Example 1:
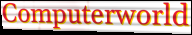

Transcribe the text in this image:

Computerworld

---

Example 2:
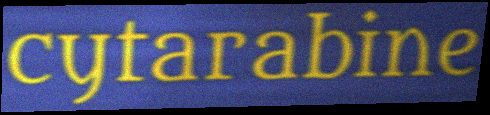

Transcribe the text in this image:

cytarabine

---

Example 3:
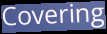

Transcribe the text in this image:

Covering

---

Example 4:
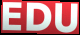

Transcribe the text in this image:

EDU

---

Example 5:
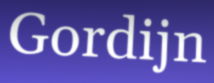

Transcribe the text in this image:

Gordijn